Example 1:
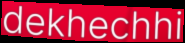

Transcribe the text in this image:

dekhechhi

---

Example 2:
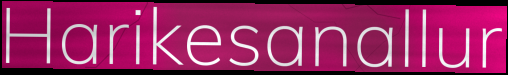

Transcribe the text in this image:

Harikesanallur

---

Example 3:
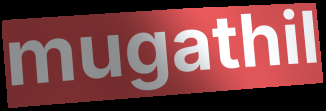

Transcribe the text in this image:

mugathil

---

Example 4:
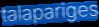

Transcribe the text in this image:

talapariges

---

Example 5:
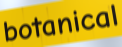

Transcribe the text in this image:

botanical